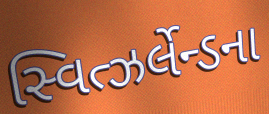
સ્વિત્ઝર્લેન્ડના